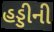
હડ્ડીની